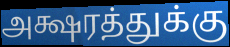
அக்ஷரத்துக்கு